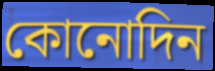
কোনোদিন